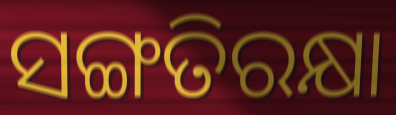
ସଙ୍ଗତିରକ୍ଷା